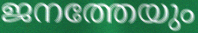
ജനത്തേയും